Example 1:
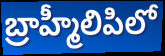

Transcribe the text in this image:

బ్రాహ్మీలిపిలో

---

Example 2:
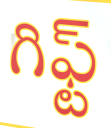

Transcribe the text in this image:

గిఫ్ట్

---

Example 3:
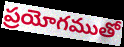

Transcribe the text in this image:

ప్రయోగముతో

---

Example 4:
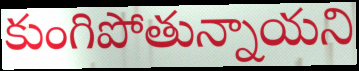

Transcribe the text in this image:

కుంగిపోతున్నాయని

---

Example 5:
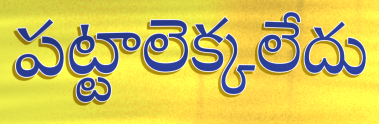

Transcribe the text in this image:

పట్టాలెక్కలేదు